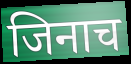
जिनाच